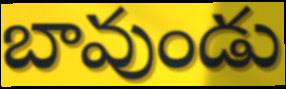
బావుండు